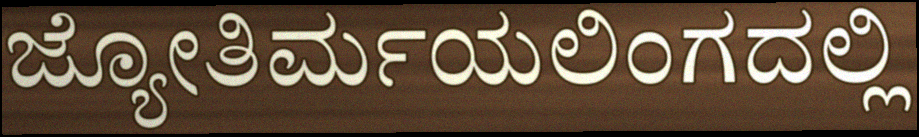
ಜ್ಯೋತಿರ್ಮಯಲಿಂಗದಲ್ಲಿ